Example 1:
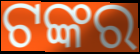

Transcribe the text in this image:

ଟଙ୍କର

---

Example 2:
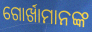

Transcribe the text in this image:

ଗୋର୍ଖାମାନଙ୍କ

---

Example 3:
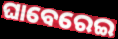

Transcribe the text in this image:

ଘାବେରେଇ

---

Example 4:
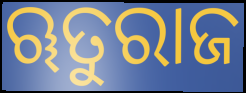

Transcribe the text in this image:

ୠତୁରାଜ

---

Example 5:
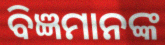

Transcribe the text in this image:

ବିଜ୍ଞମାନଙ୍କ